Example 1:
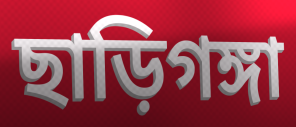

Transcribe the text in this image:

ছাড়িগঙ্গা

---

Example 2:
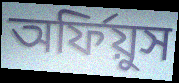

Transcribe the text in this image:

অর্ফিয়ুস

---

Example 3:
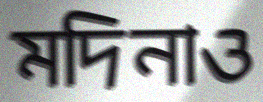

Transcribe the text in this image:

মদিনাও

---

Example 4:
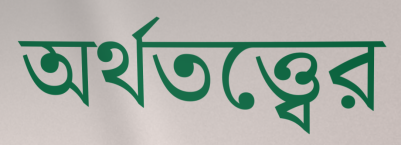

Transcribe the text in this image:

অর্থতত্ত্বের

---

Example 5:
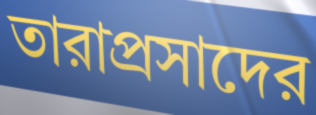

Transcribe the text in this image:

তারাপ্রসাদের